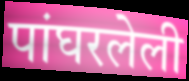
पांघरलेली